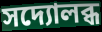
সদ্যোলব্ধ